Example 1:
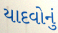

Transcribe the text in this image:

યાદવોનું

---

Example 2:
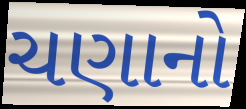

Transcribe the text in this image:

ચણાનો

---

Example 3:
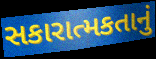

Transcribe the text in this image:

સકારાત્મકતાનું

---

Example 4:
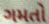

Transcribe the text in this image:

ગમતો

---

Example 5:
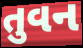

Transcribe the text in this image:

તુવન